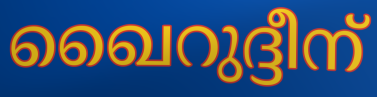
ഖൈറുദ്ദീന്